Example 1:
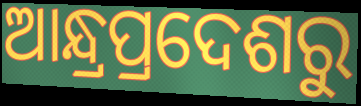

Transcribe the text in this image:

ଆନ୍ଧ୍ରପ୍ରଦେଶରୁ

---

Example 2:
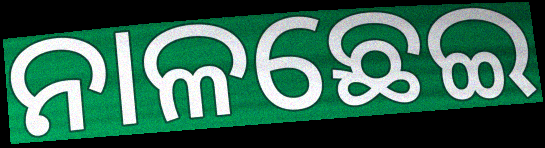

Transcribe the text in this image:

ନାଳଛେଇ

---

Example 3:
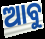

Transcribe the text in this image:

ଆବୁ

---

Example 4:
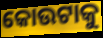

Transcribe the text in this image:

କୋଉଟାକୁ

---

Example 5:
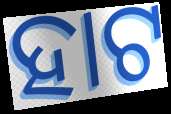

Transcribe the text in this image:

ହାଟ